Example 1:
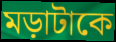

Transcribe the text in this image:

মড়াটাকে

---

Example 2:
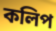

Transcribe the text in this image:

কলিপ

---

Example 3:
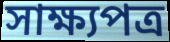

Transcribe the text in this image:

সাক্ষ্যপত্র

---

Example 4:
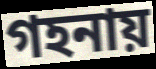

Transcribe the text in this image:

গহনায়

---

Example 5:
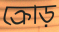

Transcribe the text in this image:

ক্রোড়